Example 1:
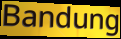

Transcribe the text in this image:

Bandung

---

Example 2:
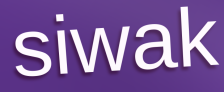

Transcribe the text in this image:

siwak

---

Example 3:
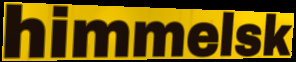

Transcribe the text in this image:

himmelsk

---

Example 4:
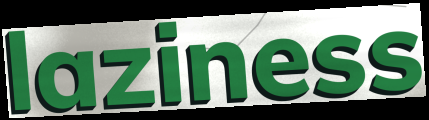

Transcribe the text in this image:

laziness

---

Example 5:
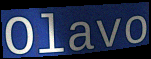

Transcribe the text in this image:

Olavo